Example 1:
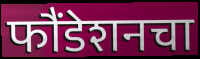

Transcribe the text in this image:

फौंडेशनचा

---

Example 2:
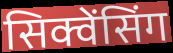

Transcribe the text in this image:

सिक्वेंसिंग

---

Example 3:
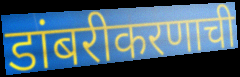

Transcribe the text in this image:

डांबरीकरणाची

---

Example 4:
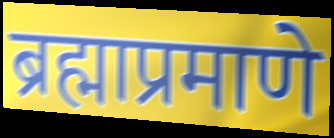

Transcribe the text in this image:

ब्रह्माप्रमाणे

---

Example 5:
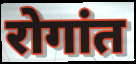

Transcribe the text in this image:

रोगांत